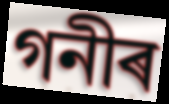
গনীৰ